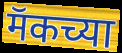
मॅकच्या